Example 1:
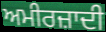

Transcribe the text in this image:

ਅਮੀਰਜ਼ਾਦੀ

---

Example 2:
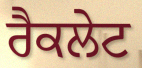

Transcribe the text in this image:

ਰੈਕਲੇਟ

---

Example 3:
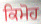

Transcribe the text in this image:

ਕਿਮੋਹ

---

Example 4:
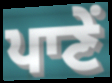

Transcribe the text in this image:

ਪਾਣੇਂ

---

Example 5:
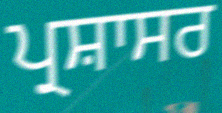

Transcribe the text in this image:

ਪ੍ਰਸ਼ਾਸਰ